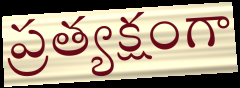
ప్రత్యక్షంగా